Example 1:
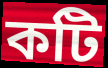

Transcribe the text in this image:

কটি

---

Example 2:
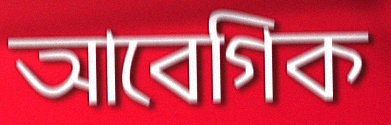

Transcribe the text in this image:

আবেগিক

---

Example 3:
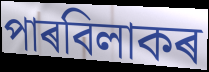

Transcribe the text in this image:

পাৰবিলাকৰ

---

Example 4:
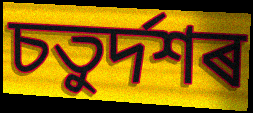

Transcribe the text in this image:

চতুৰ্দশৰ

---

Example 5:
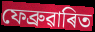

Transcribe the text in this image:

ফেব্ৰুৱাৰিত